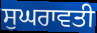
ਸੁਘਰਾਵਤੀ